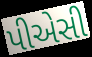
પીએસી